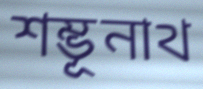
শম্ভূনাথ